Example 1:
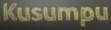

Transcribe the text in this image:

Kusumpu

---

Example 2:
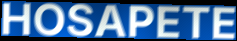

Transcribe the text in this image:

HOSAPETE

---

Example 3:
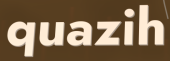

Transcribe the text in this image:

quazih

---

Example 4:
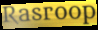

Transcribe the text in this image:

Rasroop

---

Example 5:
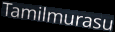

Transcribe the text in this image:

Tamilmurasu